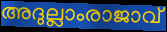
അദുല്ലാംരാജാവ്